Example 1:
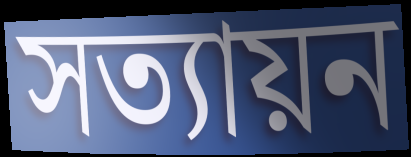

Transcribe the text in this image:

সত্যায়ন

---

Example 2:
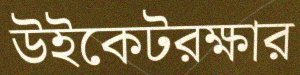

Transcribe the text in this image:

উইকেটরক্ষার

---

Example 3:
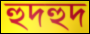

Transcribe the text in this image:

হুদহুদ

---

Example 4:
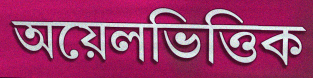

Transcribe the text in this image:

অয়েলভিত্তিক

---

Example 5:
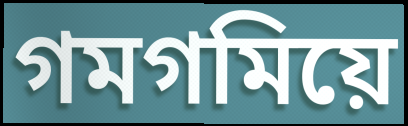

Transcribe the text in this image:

গমগমিয়ে